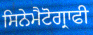
ਸਿਨੇਮੈਟੋਗ੍ਰਾਫੀ